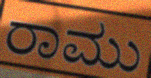
ರಾಮು